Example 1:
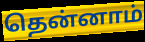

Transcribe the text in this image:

தென்னாம்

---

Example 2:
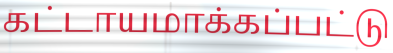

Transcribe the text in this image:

கட்டாயமாக்கப்பட்டு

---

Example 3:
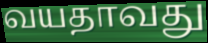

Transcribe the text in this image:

வயதாவது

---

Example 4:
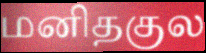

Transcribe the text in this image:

மனிதகுல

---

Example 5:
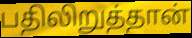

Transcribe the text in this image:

பதிலிறுத்தான்